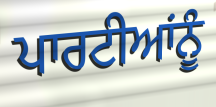
ਪਾਰਟੀਆਂਨੂੰ